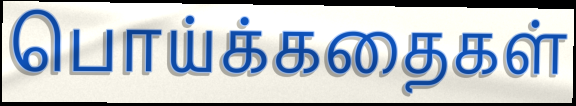
பொய்க்கதைகள்